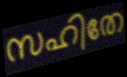
സഹിതേ